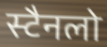
स्टैनलो